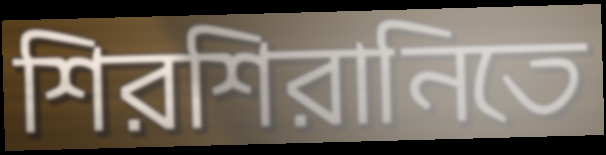
শিরশিরানিতে